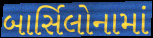
બાર્સિલોનામાં